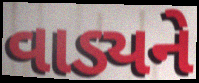
વાડ્યને